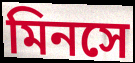
মিনসে